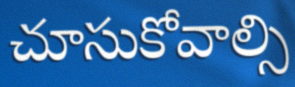
చూసుకోవాల్సి